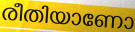
രീതിയാണോ